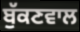
ਬੁੱਕਣਵਾਲ